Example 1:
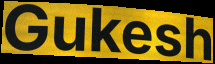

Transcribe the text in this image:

Gukesh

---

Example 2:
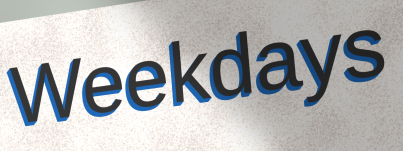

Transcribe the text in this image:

Weekdays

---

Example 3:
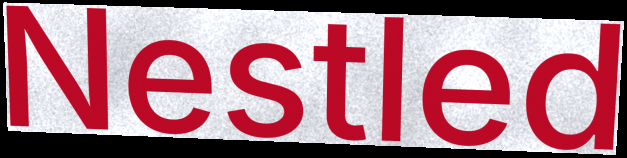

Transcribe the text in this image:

Nestled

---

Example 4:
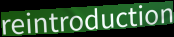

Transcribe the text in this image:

reintroduction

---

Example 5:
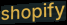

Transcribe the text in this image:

shopify